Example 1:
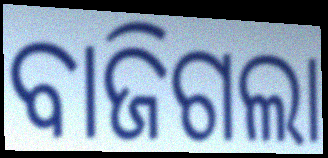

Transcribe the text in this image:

ବାଜିଗଲା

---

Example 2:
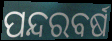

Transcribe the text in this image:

ପନ୍ଦରବର୍ଷ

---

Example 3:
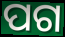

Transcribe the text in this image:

ପଗ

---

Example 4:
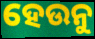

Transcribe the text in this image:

ହେଉନୁ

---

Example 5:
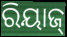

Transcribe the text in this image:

ରିୟାଜ୍